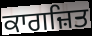
ਕਾਗਜ਼ਿਤ